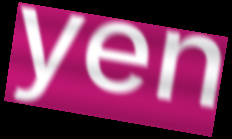
yen